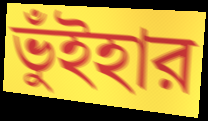
ভুঁইহার